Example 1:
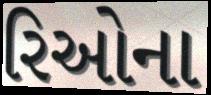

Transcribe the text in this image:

રિઓના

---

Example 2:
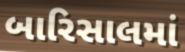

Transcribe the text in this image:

બારિસાલમાં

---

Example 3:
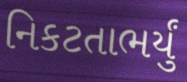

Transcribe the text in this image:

નિકટતાભર્યું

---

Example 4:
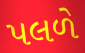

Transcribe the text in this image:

પલળે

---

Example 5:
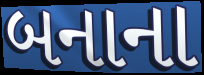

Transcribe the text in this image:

બનાના